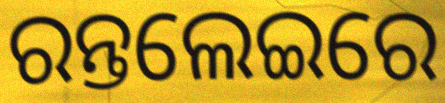
ରନ୍ତଲେଇରେ